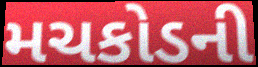
મચકોડની